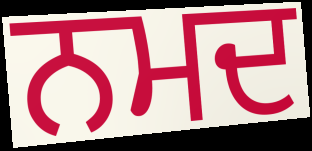
ਨਮਦ